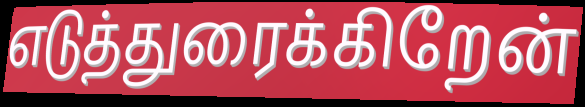
எடுத்துரைக்கிறேன்